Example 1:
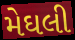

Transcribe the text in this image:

મેઘલી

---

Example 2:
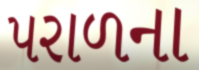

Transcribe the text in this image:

પરાળના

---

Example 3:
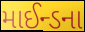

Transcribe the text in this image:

માઈન્ડના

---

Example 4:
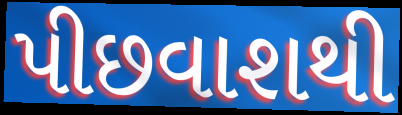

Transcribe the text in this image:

પીછવાશથી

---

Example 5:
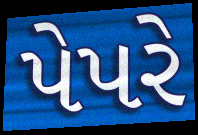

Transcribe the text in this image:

પેપરે